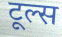
टूल्स